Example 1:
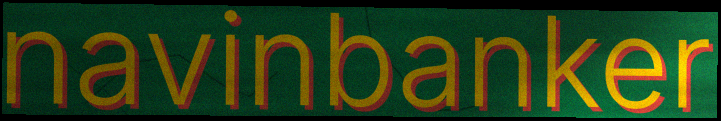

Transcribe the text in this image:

navinbanker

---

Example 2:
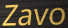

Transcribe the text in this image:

Zavo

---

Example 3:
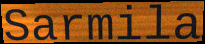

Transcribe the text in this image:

Sarmila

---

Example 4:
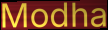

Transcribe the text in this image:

Modha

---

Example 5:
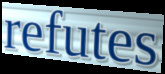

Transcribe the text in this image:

refutes